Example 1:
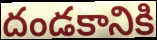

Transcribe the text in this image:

దండకానికి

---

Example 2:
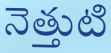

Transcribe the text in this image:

నెత్తుటి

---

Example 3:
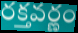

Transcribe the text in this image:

రక్తవర్ణం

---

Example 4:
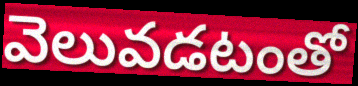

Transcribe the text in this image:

వెలువడటంతో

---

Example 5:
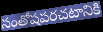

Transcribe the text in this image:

సంతోషపరచటానికి